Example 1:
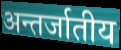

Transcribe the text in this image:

अन्तर्जातीय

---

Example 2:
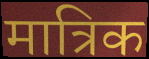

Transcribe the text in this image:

मात्रिक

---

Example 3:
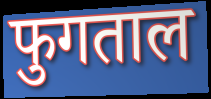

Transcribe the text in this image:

फुगताल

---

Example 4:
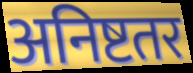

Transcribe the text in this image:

अनिष्टतर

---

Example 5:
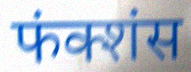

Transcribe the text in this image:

फंक्शंस